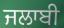
ਜਲਾਬੀ